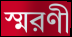
স্মরণী